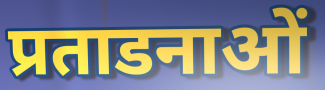
प्रताडनाओं